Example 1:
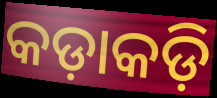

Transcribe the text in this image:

କଡ଼ାକଡ଼ି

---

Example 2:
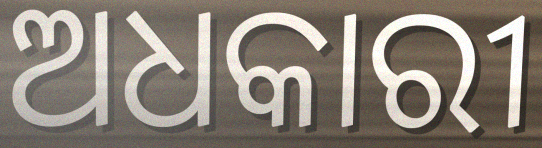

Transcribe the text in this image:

ଅଧକାରୀ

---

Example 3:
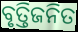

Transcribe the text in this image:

ବୃତ୍ତିଜନିତ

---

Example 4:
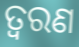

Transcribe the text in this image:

ତ୍ୱରଣ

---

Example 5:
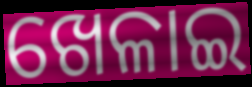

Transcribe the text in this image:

ଖେଳାଇ